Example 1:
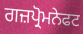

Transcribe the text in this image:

ਗਜ਼ਪ੍ਰੋਮਨੇਫਟ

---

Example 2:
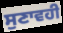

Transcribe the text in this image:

ਸੁਣਾਵਹੀ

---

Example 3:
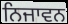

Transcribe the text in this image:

ਨਿਜਾਵਨ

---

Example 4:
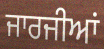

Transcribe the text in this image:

ਜਾਰਜੀਆਂ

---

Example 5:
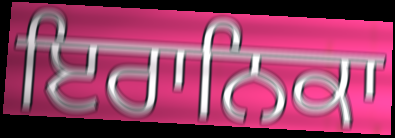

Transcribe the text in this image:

ਇਰਾਨਿਕਾ